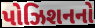
પોઝિશનનો